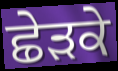
ਛੇੜਕੇ